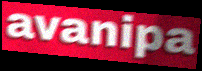
avanipa